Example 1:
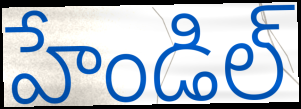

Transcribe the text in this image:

హేండిల్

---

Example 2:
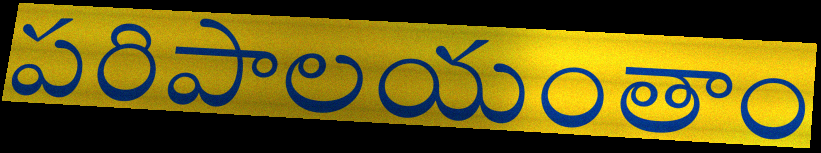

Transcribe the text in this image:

పరిపాలయంతాం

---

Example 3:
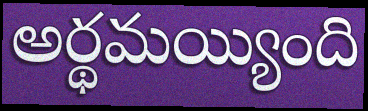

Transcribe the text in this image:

అర్థమయ్యింది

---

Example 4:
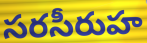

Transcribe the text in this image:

సరసీరుహ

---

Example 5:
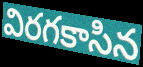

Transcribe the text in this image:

విరగకాసిన